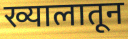
ख्यालातून